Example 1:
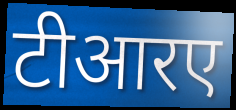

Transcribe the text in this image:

टीआरए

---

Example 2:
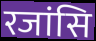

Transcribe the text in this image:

रजांसि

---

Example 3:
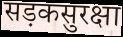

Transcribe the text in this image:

सड़कसुरक्षा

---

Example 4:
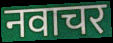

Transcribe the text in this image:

नवाचर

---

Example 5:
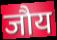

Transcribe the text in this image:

जौय